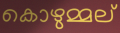
കൊഴുമ്മല്